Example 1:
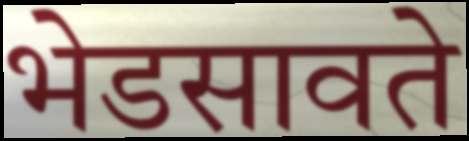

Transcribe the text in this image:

भेडसावते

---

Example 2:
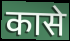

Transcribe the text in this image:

कासे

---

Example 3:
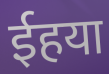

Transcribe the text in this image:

ईहया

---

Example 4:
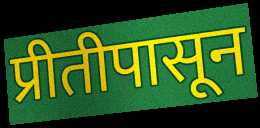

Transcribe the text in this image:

प्रीतीपासून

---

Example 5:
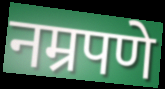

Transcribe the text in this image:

नम्रपणे